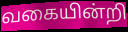
வகையின்றி